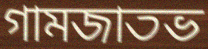
গামজাতভ